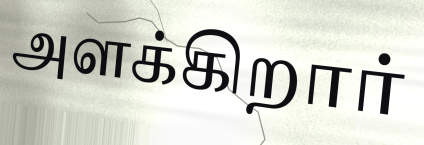
அளக்கிறார்